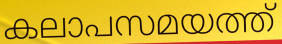
കലാപസമയത്ത്